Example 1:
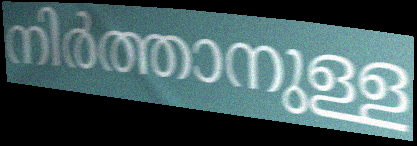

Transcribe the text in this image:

നിർത്താനുള്ള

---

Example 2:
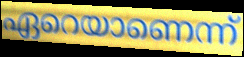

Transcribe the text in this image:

ഏറെയാണെന്ന്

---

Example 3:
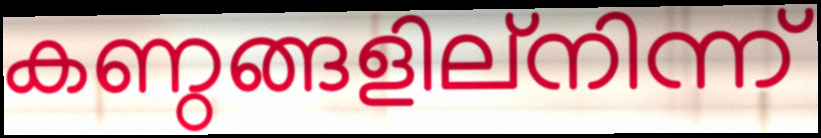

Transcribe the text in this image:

കണ്ഠങ്ങളില്നിന്ന്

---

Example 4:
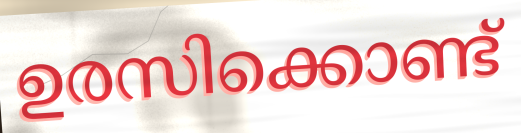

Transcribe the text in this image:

ഉരസിക്കൊണ്ട്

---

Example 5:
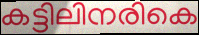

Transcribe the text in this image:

കട്ടിലിനരികെ